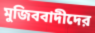
মুজিববাদীদের